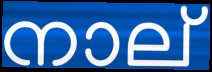
നാല്